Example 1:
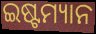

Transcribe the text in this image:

ଇଷ୍ଟମ୍ୟାନ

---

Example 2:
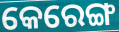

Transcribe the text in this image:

କେରେଙ୍ଗ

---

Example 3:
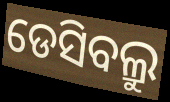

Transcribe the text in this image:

ଡେସିବଲ୍ରୁ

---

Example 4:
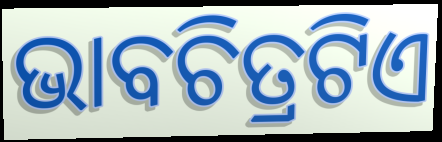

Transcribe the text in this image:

ଭାବଚିତ୍ରଟିଏ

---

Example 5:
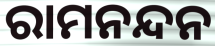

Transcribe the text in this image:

ରାମନନ୍ଦନ